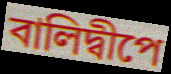
বালিদ্বীপে